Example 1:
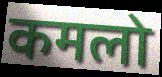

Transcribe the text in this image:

कमलो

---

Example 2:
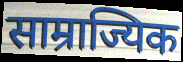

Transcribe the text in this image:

साम्राज्यिक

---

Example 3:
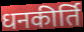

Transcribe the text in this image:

धनकीर्ति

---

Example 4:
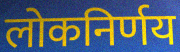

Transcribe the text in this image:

लोकनिर्णय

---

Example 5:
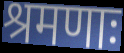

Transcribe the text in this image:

श्रमणाः